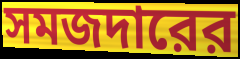
সমজদারের